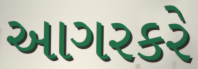
આગરકરે